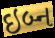
ઇબ્ન